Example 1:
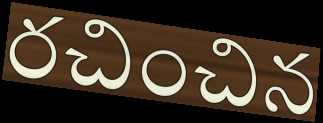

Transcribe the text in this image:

రచించిన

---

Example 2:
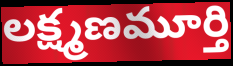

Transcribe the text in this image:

లక్ష్మణమూర్తి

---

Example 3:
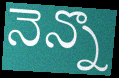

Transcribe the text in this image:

నెన్నొ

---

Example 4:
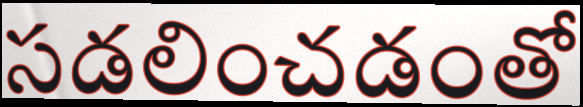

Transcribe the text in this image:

సడలించడంతో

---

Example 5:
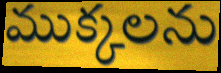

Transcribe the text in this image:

ముక్కలను